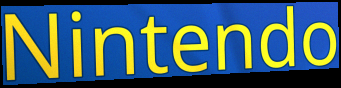
Nintendo